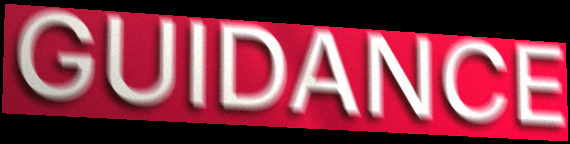
GUIDANCE